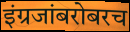
इंग्रजांबरोबरच